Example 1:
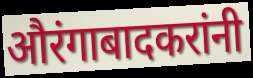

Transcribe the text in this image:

औरंगाबादकरांनी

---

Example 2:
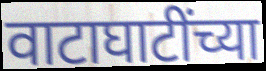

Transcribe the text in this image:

वाटाघाटींच्या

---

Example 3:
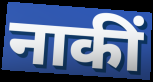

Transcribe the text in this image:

नाकीं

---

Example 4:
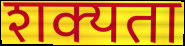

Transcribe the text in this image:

शक्यता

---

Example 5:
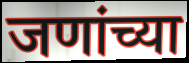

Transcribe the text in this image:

जणांच्या